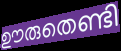
ഊരുതെണ്ടി